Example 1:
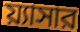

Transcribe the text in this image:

য়্যাসার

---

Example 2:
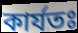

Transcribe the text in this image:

কার্যতঃ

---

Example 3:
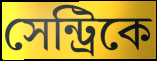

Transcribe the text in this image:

সেন্ট্রিকে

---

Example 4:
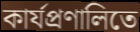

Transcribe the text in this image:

কার্যপ্রণালিতে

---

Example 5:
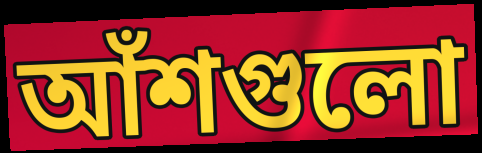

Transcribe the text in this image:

আঁশগুলো